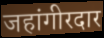
जहांगीरदार